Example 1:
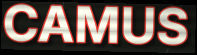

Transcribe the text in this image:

CAMUS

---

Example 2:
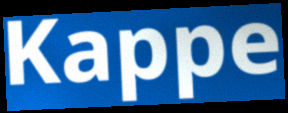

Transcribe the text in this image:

Kappe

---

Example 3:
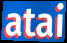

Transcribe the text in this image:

atai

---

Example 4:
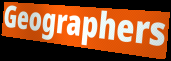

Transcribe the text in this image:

Geographers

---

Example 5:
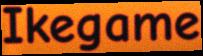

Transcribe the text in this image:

Ikegame